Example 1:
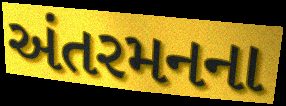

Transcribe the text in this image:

અંતરમનના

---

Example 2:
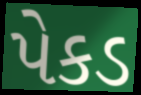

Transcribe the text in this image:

પેકડ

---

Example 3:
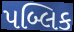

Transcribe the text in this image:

પબ્લિક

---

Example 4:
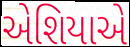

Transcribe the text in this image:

એશિયાએ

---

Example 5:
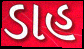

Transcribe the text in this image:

ડાહ